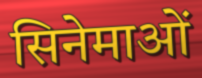
सिनेमाओं